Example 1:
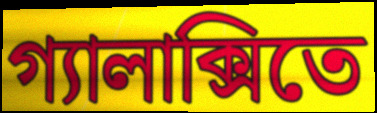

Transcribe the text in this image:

গ্যালাক্সিতে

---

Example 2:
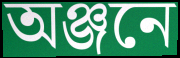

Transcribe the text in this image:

অঞ্জনে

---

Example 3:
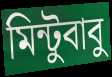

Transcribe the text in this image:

মিন্টুবাবু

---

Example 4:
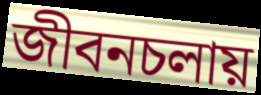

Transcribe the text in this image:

জীবনচলায়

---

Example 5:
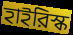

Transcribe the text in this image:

হাইরিস্ক